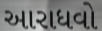
આરાધવો